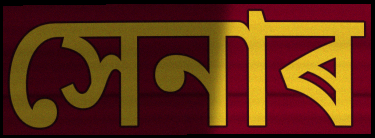
সেনাৰ